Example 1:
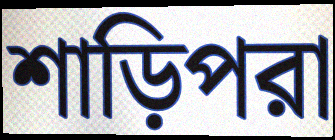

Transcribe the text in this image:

শাড়িপরা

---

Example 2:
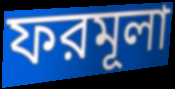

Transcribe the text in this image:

ফরমূলা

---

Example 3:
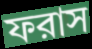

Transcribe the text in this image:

ফরাস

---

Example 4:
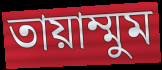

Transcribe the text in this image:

তায়াম্মুম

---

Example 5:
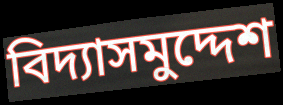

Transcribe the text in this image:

বিদ্যাসমুদ্দেশ